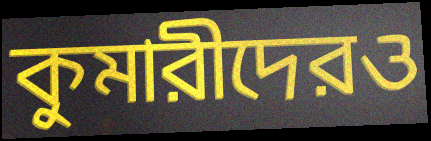
কুমারীদেরও